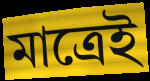
মাত্রেই